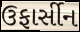
ઉફાર્સીન